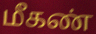
மீகண்